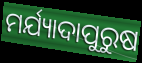
ମର୍ଯ୍ୟାଦାପୁରୁଷ